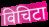
विचिटा